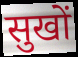
सुखों